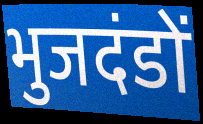
भुजदंडों